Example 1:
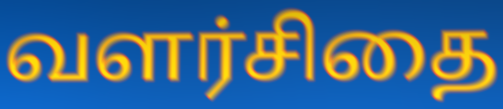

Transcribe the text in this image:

வளர்சிதை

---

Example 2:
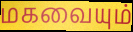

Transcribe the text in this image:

மகவையும்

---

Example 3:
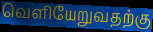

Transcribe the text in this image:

வெளியேறுவதற்கு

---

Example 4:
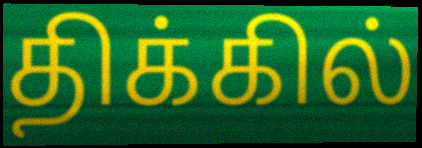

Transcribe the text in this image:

திக்கில்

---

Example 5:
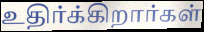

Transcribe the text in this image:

உதிர்க்கிறார்கள்